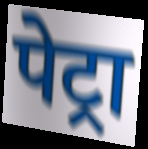
पेट्रा